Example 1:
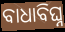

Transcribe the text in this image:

ବାଧାବିଘ୍ନ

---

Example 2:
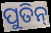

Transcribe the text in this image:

ପୁତିନ୍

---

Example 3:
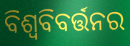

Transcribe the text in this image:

ବିଶ୍ଵବିବର୍ତ୍ତନର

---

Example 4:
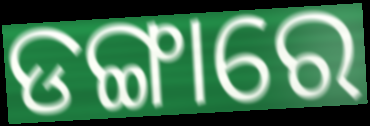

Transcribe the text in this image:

ଡଙ୍ଗାରେ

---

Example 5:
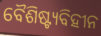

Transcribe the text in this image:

ବୈଶିଷ୍ଟ୍ୟବିହୀନ